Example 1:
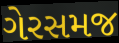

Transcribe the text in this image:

ગેરસમજ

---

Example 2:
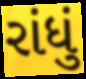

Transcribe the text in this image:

રાંધું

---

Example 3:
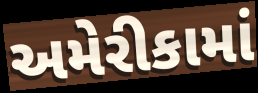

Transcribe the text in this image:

અમેરીકામાં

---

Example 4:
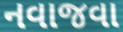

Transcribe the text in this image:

નવાજવા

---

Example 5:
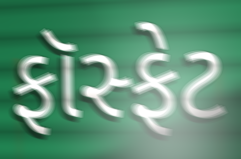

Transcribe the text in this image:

ફૉસ્ફેટ